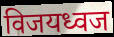
विजयध्वज